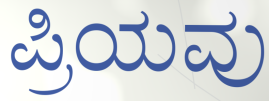
ಪ್ರಿಯವು